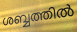
ശബ്ബത്തിൽ